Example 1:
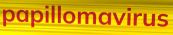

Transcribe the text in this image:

papillomavirus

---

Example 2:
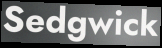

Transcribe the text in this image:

Sedgwick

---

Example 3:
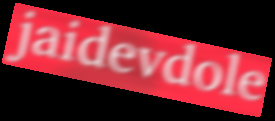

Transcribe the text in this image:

jaidevdole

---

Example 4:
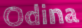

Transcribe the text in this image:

Odina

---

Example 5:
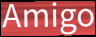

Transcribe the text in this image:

Amigo